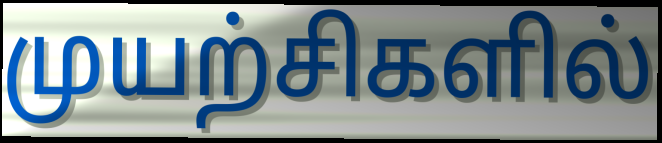
முயற்சிகளில்